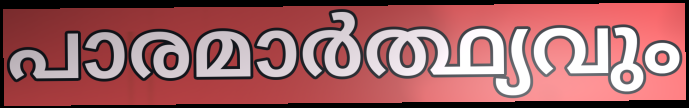
പാരമാർത്ഥ്യവും